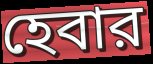
হেবার